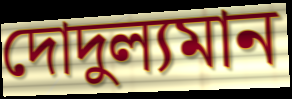
দোদুল্যমান